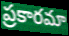
ప్రకారమా